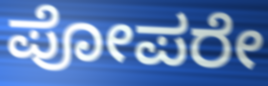
ಪೋಪರೇ